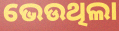
ଭେଉଥିଲା